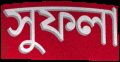
সুফলা